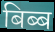
बिब्ब